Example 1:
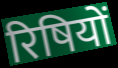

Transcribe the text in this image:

रिषियों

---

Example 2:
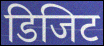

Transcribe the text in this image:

डिजिट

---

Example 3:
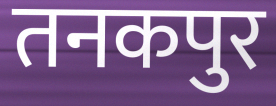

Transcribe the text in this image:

तनकपुर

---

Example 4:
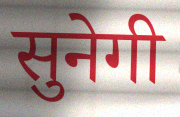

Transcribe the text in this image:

सुनेगी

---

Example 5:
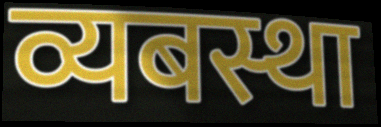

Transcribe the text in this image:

व्यबस्था